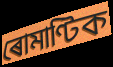
ৰোমাণ্টিক